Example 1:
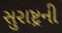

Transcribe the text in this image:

સુરાષ્ટ્રની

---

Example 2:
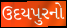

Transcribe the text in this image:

ઉદયપુરનો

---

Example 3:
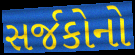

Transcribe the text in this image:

સર્જકોનો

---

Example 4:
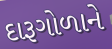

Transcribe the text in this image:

દારૂગોળાને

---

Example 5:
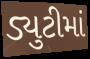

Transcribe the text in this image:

ડ્યુટીમાં